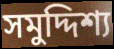
সমুদ্দিশ্য